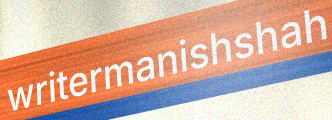
writermanishshah